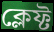
ক্লেফ্ট